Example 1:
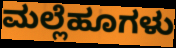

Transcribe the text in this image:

ಮಲ್ಲೆಹೂಗಳು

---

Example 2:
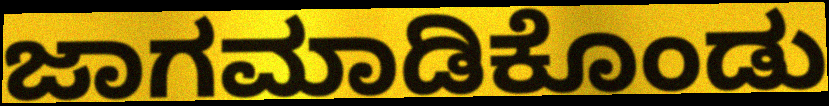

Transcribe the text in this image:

ಜಾಗಮಾಡಿಕೊಂಡು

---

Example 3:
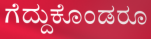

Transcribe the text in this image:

ಗೆದ್ದುಕೊಂಡರೂ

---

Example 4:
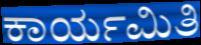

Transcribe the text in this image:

ಕಾರ್ಯಮಿತಿ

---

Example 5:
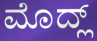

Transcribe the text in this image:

ಮೊದ್ಲ್